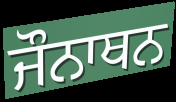
ਜੌਨਾਥਨ